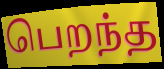
பெறந்த